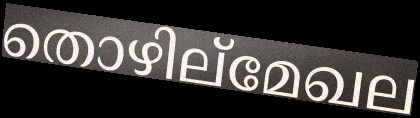
തൊഴില്മേഖല